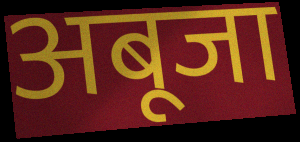
अबूजा